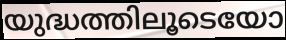
യുദ്ധത്തിലൂടെയോ